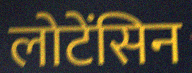
लोटेंसिन